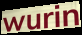
wurin